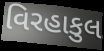
વિરહાકુલ